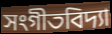
সংগীতবিদ্যা